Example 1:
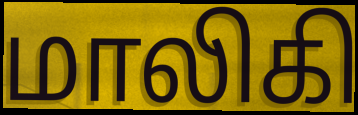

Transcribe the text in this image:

மாலிகி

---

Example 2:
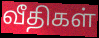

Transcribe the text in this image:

வீதிகள்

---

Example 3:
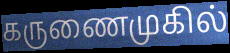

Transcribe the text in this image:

கருணைமுகில்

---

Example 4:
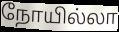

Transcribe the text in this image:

நோயில்லா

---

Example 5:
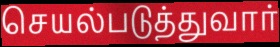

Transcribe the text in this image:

செயல்படுத்துவார்